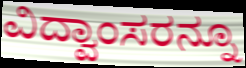
ವಿದ್ವಾಂಸರನ್ನೂ